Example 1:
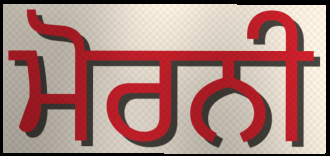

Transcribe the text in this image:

ਮੋਰਨੀ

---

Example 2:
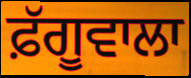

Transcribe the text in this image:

ਫ਼ੱਗੂਵਾਲਾ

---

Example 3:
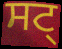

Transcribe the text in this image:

ਸਟ੍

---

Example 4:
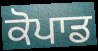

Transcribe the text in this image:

ਕੋਪਾਡ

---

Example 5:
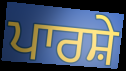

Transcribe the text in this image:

ਪਾਰਸ਼ੇ